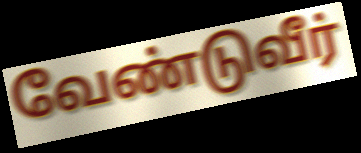
வேண்டுவீர்